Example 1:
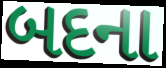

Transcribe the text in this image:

બદના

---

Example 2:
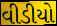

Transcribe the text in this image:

વીડીયો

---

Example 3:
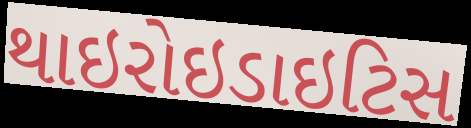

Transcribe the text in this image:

થાઇરોઇડાઇટિસ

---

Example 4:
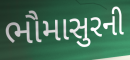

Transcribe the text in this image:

ભૌમાસુરની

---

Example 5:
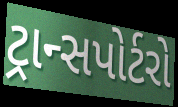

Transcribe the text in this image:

ટ્રાન્સપોર્ટરો